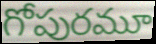
గోపురమూ